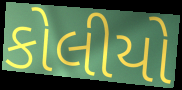
કોલીયો